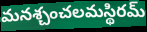
మనశ్చంచలమస్థిరమ్